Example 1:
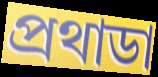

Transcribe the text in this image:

প্রথাডা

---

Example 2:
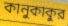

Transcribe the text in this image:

কানুকাকুর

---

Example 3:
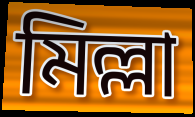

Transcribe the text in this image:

মিল্লা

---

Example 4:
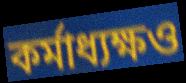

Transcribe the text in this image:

কর্মাধ্যক্ষও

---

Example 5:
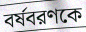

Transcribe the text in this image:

বর্ষবরণকে